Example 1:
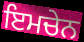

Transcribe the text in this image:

ਇਮਚੇਨ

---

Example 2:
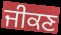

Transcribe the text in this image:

ਜੀਕਣ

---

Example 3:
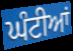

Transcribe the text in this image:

ਘੰਟੀਆਂ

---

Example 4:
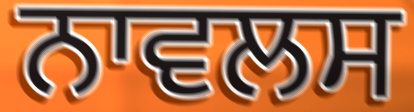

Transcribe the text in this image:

ਨਾਵਲਸ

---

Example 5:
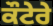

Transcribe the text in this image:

ਕੌਟੇਰੇ